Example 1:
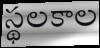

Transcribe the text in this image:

స్థలకాల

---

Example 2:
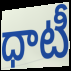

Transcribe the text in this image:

ధాటీ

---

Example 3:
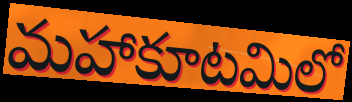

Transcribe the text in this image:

మహాకూటమిలో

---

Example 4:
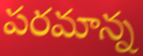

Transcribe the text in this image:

పరమాన్న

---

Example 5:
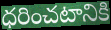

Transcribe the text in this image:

ధరించటానికి